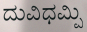
ದುವಿಧಮ್ಪಿ